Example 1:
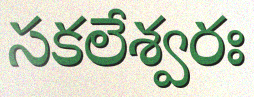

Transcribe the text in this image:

సకలేశ్వరః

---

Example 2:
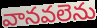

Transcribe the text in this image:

వానవలెను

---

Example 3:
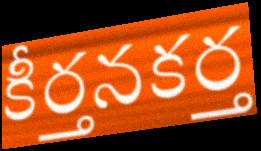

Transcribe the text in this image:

కీర్తనకర్త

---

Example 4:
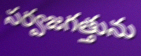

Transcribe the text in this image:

సర్వజగత్తును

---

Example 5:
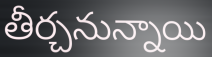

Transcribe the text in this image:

తీర్చనున్నాయి